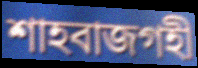
শাহবাজগহী